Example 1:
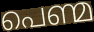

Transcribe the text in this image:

പെണ്മ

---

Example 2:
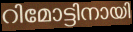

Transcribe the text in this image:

റിമോട്ടിനായി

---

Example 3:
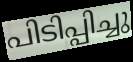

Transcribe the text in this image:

പിടിപ്പിച്ചു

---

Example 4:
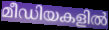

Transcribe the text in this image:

മീഡിയകളിൽ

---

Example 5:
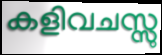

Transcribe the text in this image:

കളിവചസ്സു